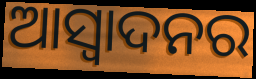
ଆସ୍ବାଦନର